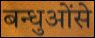
बन्धुओंसे